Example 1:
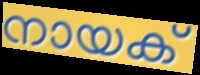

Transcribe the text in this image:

നായക്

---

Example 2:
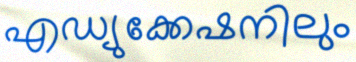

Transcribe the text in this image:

എഡ്യുക്കേഷനിലും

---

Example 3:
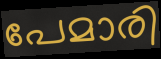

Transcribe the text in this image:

പേമാരി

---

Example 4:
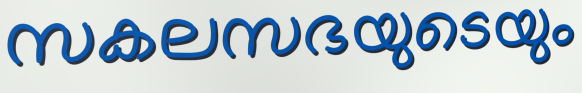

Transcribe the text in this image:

സകലസഭയുടെയും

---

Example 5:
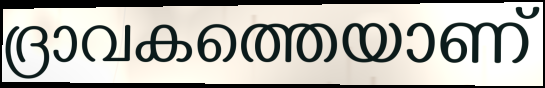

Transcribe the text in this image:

ദ്രാവകത്തെയാണ്